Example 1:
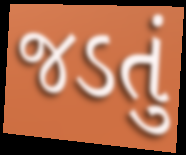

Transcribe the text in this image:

જડતું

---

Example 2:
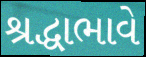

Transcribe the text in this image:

શ્રદ્ધાભાવે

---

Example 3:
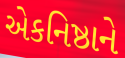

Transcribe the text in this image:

એકનિષ્ઠાને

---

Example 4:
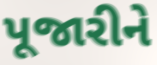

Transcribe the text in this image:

પૂજારીને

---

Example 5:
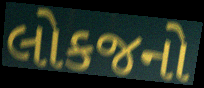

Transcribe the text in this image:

લોકજનો